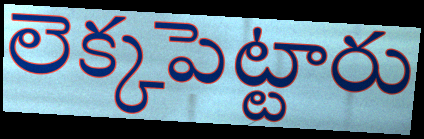
లెక్కపెట్టారు